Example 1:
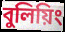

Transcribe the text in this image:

বুলিয়িং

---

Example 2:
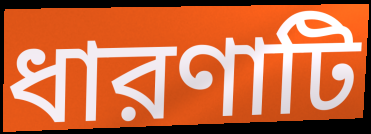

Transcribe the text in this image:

ধারণাটি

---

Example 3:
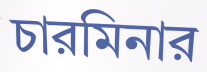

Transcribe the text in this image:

চারমিনার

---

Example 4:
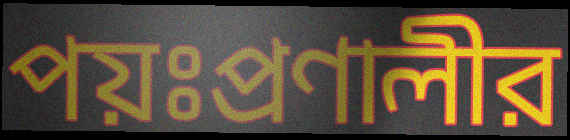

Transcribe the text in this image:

পয়ঃপ্রণালীর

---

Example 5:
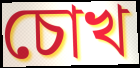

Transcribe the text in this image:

চোখ